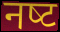
नष्‍ट